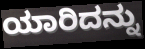
ಯಾರಿದನ್ನು